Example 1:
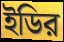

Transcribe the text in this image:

ইডির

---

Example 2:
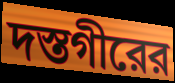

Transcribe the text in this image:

দস্তগীরের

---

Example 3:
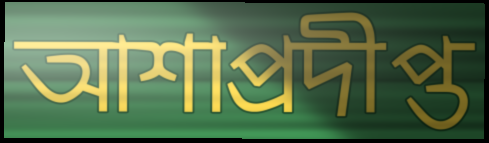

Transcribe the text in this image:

আশাপ্রদীপ্ত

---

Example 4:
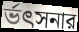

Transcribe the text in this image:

র্ভৎসনার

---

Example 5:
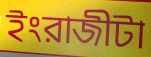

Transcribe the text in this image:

ইংরাজীটা